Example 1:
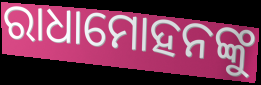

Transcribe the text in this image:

ରାଧାମୋହନଙ୍କୁ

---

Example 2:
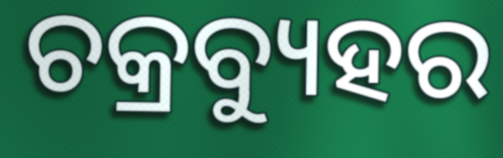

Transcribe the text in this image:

ଚକ୍ରବ୍ୟୁହର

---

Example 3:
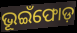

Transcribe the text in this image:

ଭୂଇଁଫୋଡ଼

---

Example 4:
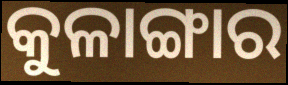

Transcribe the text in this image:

କୁଳାଙ୍ଗାର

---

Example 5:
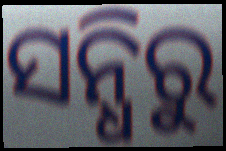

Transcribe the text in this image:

ସନ୍ଧିରୁ